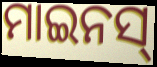
ମାଇନସ୍